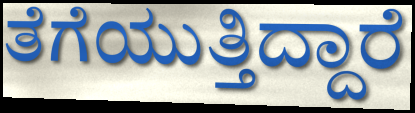
ತೆಗೆಯುತ್ತಿದ್ದಾರೆ